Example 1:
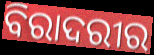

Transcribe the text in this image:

ବିରାଦରୀର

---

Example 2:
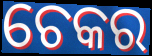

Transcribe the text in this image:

ଚେକର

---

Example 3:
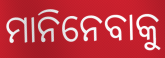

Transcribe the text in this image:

ମାନିନେବାକୁ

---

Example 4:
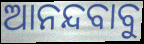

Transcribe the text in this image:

ଆନନ୍ଦବାବୁ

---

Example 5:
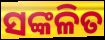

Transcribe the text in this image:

ସଙ୍କଳିତ